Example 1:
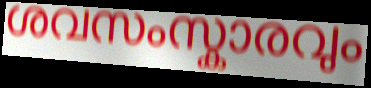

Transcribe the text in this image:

ശവസംസ്കാരവും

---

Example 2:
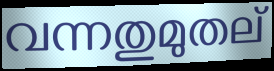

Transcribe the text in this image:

വന്നതുമുതല്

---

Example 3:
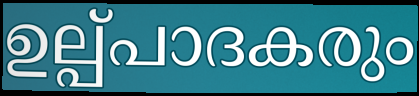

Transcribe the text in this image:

ഉല്പ്പാദകരും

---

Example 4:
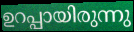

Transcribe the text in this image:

ഉറപ്പായിരുന്നു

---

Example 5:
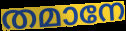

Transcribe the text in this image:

തമാനേ